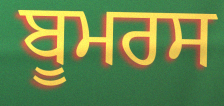
ਬੂਮਰਸ